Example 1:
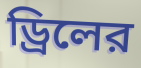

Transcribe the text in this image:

ড্রিলের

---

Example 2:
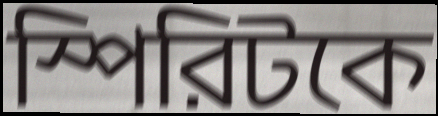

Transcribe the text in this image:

স্পিরিটকে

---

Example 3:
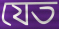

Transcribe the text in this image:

যেত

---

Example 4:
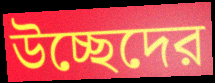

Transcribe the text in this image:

উচ্ছেদের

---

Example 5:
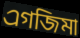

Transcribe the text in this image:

এগজিমা